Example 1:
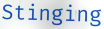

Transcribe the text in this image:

Stinging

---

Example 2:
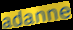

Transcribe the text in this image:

adanne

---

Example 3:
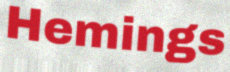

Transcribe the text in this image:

Hemings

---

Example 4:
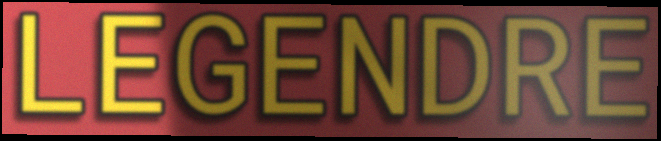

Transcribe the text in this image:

LEGENDRE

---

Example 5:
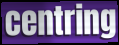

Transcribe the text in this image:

centring